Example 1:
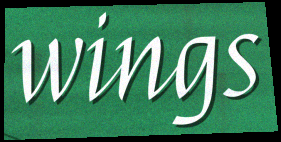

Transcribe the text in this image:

wings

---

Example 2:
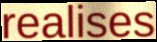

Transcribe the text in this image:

realises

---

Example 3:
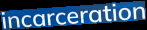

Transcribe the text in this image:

incarceration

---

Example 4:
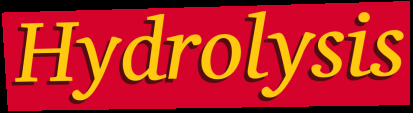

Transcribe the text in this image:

Hydrolysis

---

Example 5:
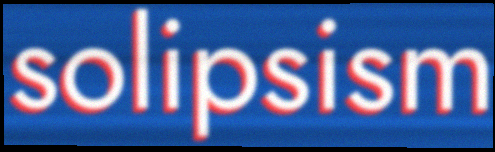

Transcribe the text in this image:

solipsism